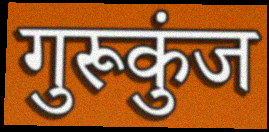
गुरूकुंज